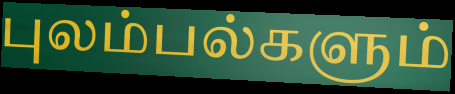
புலம்பல்களும்